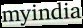
myindia